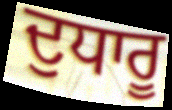
ਦੁਧਾਰੂ